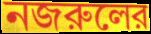
নজরুলের